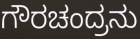
ಗೌರಚಂದ್ರನು